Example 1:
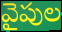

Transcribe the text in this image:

వైపుల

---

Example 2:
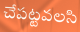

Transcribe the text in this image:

చేపట్టవలసి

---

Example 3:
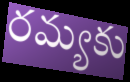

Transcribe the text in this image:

రమ్యకు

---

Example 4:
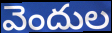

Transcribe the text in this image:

వెందుల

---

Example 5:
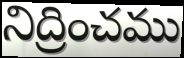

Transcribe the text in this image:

నిద్రించము